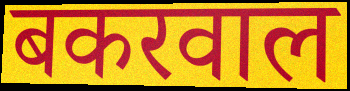
बकरवाल